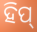
ହିପ୍